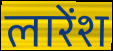
लारेंश